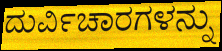
ದುರ್ವಿಚಾರಗಳನ್ನು